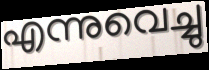
എന്നുവെച്ചു